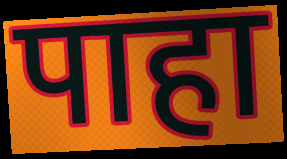
पाहा